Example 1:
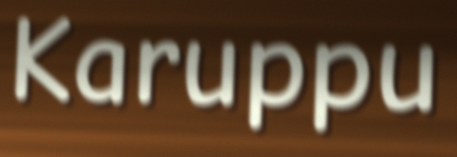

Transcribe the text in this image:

Karuppu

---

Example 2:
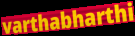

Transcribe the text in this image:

varthabharthi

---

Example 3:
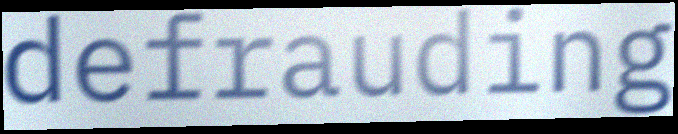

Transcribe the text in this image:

defrauding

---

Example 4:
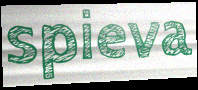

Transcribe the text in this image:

spieva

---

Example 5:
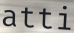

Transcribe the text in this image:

atti